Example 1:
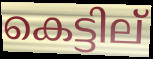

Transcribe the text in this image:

കെട്ടില്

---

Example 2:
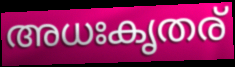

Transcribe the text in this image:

അധഃകൃതര്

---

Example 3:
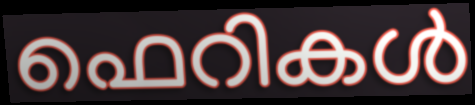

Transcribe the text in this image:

ഫെറികൾ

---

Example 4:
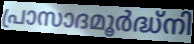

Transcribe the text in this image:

പ്രാസാദമൂർദ്ധ്നി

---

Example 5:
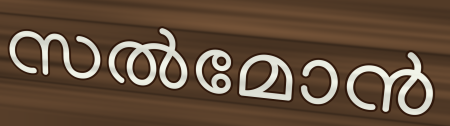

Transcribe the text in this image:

സൽമോൻ